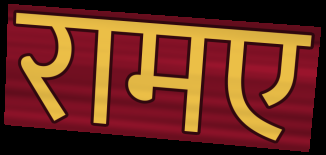
रामए